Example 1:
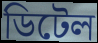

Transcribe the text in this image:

ডিটেল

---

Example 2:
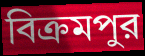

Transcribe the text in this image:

বিক্রমপুর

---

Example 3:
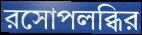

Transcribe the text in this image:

রসোপলব্ধির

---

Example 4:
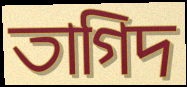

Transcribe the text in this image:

তাগিদ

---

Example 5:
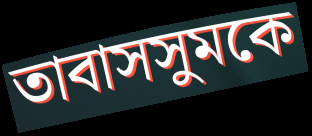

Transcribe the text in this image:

তাবাসসুমকে